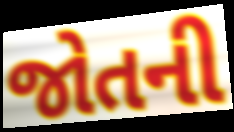
જોતની